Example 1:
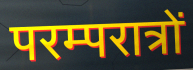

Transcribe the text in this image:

परम्परात्रों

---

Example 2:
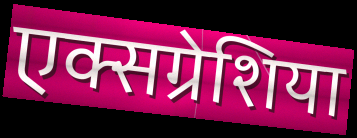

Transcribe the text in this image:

एक्सग्रेशिया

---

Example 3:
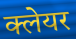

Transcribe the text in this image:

क्लेयर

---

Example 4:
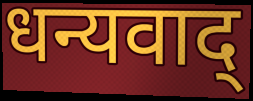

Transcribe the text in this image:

धन्यवाद्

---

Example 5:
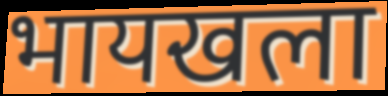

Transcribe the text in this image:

भायखला